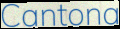
Cantona